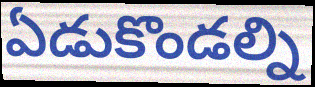
ఏడుకొండల్ని